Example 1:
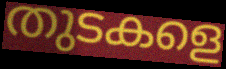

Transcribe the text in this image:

തുടകളെ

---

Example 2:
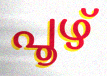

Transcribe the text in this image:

പൂഴ്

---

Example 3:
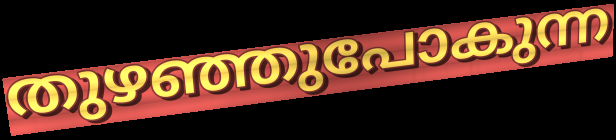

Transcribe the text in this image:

തുഴഞ്ഞുപോകുന്ന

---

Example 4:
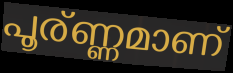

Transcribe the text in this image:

പൂര്ണ്ണമാണ്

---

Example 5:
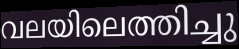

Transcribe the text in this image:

വലയിലെത്തിച്ചു